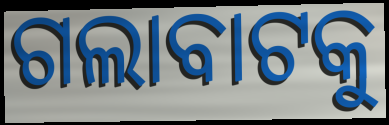
ଗଲାବାଟକୁ